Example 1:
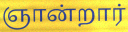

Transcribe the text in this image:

ஞான்றார்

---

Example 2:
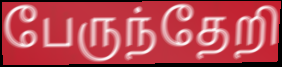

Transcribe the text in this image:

பேருந்தேறி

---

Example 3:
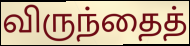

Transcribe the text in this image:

விருந்தைத்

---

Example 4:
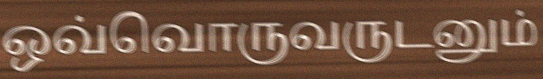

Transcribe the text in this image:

ஒவ்வொருவருடனும்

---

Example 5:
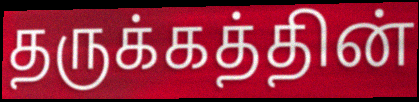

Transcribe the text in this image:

தருக்கத்தின்